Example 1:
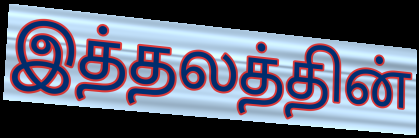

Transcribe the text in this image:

இத்தலத்தின்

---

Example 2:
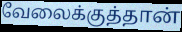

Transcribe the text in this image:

வேலைக்குத்தான்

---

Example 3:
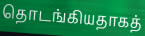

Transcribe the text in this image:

தொடங்கியதாகத்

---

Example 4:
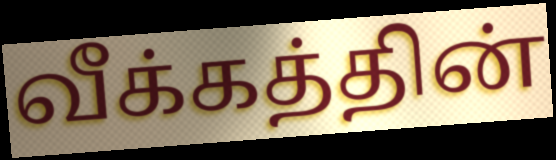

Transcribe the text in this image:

வீக்கத்தின்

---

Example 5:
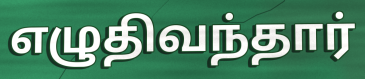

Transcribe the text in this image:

எழுதிவந்தார்